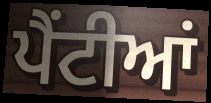
ਪੈਂਟੀਆਂ